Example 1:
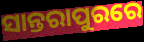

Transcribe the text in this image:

ସାନ୍ତରାପୁରରେ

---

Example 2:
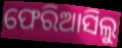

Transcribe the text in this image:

ଫେରିଆସିଲୁ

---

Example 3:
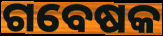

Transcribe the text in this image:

ଗବେଷକ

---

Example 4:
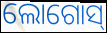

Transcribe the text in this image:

ଲୋଗୋସ୍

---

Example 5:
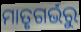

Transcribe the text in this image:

ମାତୃଗର୍ଭରୁ